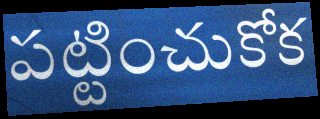
పట్టించుకోక